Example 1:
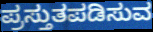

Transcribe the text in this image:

ಪ್ರಸ್ತುತಪಡಿಸುವ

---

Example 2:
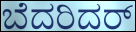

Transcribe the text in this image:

ಬೆದರಿದರ್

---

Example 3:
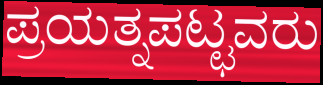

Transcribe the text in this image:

ಪ್ರಯತ್ನಪಟ್ಟವರು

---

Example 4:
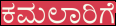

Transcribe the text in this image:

ಕಮಲಾರಿಗೆ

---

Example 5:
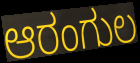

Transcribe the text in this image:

ಆರಂಗುಲ